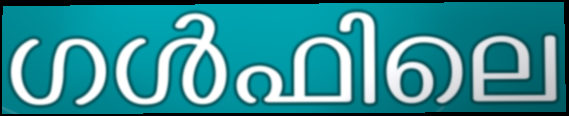
ഗൾഫിലെ